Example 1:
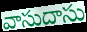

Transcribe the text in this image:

వాసుదాసు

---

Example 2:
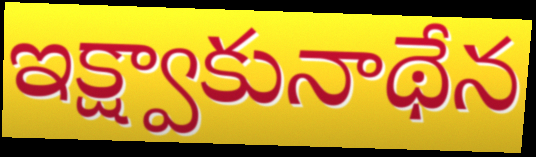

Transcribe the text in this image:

ఇక్ష్వాకునాథేన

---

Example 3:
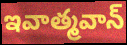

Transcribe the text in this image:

ఇవాత్మవాన్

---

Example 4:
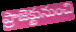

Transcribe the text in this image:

ప్రాజెక్టునుంచి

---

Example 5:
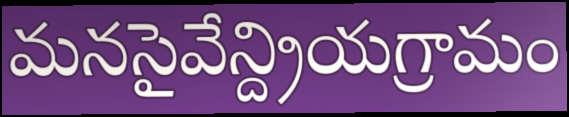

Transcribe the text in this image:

మనసైవేన్ద్రియగ్రామం